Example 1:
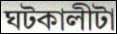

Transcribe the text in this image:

ঘটকালীটা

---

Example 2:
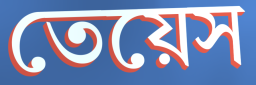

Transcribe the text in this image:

তেয়েস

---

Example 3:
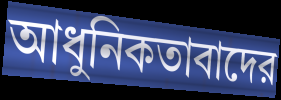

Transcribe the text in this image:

আধুনিকতাবাদের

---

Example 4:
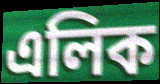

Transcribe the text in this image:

এলিক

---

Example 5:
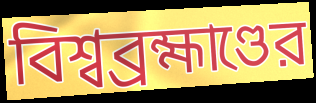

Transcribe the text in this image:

বিশ্বব্রহ্মাণ্ডের